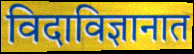
विदाविज्ञानात